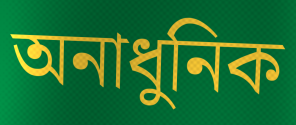
অনাধুনিক